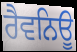
ਰੈਵਨਿਊ